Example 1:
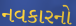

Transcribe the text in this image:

નવકારનો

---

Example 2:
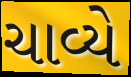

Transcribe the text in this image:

ચાવ્યે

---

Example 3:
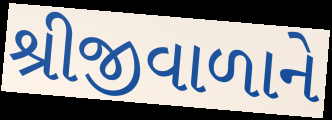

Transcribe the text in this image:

શ્રીજીવાળાને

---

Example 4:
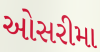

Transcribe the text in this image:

ઓસરીમા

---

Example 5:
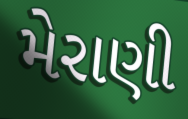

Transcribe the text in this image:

મેરાણી